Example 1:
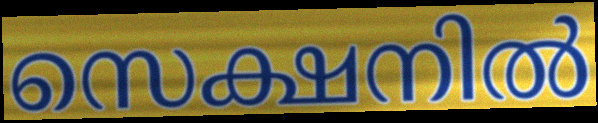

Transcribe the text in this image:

സെക്ഷനിൽ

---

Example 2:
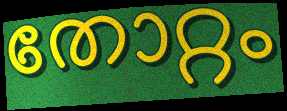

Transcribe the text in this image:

തോറ്റം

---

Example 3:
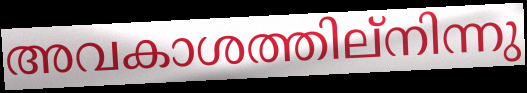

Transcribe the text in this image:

അവകാശത്തില്നിന്നു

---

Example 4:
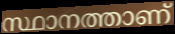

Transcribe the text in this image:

സ്ഥാനത്താണ്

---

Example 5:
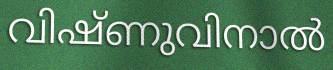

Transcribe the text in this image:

വിഷ്ണുവിനാൽ